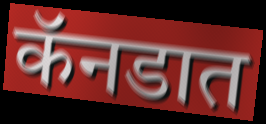
कॅनडात